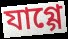
যাগ্গে